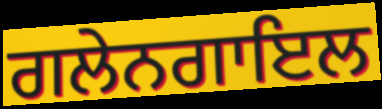
ਗਲੇਨਗਾਇਲ